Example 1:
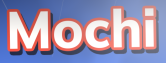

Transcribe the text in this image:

Mochi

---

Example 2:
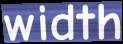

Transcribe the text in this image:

width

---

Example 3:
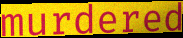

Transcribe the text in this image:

murdered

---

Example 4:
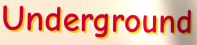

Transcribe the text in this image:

Underground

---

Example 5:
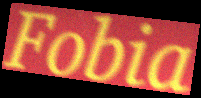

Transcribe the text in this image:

Fobia